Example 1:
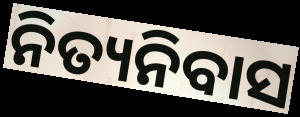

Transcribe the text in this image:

ନିତ୍ୟନିବାସ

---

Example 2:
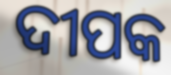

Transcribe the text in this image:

ଦୀପକ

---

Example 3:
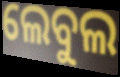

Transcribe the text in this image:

ଲେବୁଲ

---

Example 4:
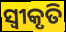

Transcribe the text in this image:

ସ୍ବୀକୃତି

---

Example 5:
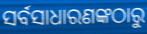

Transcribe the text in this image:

ସର୍ବସାଧାରଣଙ୍କଠାରୁ